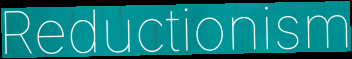
Reductionism